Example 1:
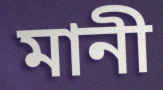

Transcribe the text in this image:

মানী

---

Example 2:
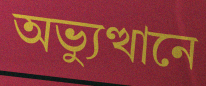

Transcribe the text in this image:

অভ্য়ুত্থানে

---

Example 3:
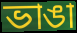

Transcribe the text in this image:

ভাঙা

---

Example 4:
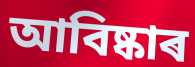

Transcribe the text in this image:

আবিষ্কাৰ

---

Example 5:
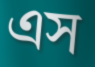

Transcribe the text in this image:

এস